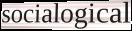
socialogical